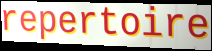
repertoire